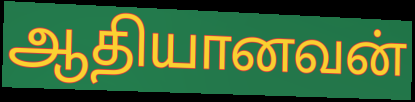
ஆதியானவன்